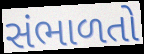
સંભાળતો